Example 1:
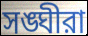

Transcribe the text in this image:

সঙ্ঘীরা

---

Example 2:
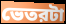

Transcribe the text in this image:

ভেতরটা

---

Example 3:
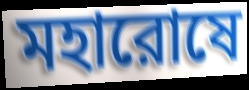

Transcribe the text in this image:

মহারোষে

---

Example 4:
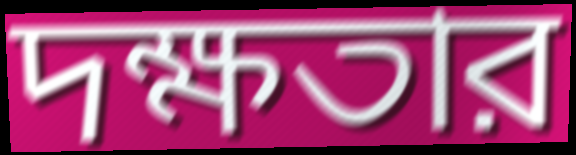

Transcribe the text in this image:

দক্ষতার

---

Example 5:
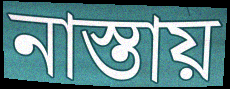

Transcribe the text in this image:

নাস্তায়